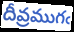
దీవ్రముగఁ